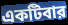
একটিবার